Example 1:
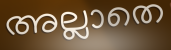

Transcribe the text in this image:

അല്ലാതെ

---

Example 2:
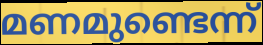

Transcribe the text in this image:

മണമുണ്ടെന്ന്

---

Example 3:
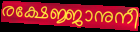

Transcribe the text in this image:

രക്ഷേജ്ജാനുനീ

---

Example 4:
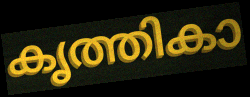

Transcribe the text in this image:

കൃത്തികാ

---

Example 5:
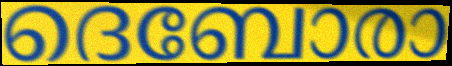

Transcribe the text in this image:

ദെബോരാ